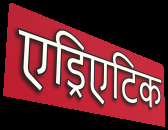
एड्रिएटिक